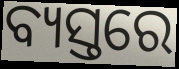
ବ୍ୟସ୍ତରେ